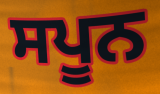
ਸਪੂਨ